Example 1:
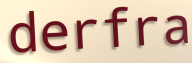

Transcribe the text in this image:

derfra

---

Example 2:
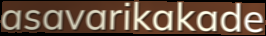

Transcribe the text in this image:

asavarikakade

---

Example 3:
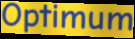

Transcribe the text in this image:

Optimum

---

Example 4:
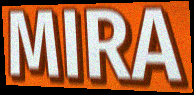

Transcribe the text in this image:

MIRA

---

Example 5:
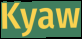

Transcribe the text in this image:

Kyaw